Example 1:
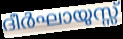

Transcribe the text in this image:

ദീർഘായുസ്സ്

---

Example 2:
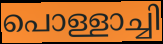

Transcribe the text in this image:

പൊള്ളാച്ചി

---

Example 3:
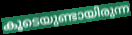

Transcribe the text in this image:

കൂടെയുണ്ടായിരുന്ന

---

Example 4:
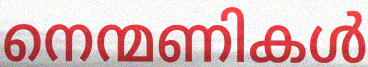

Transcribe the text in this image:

നെന്മണികൾ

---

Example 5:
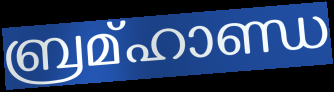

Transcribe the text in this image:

ബ്രമ്ഹാണ്ഡ